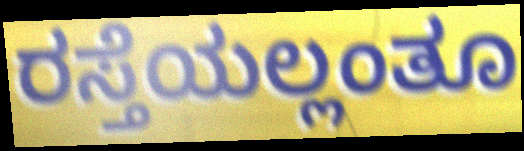
ರಸ್ತೆಯಲ್ಲಂತೂ